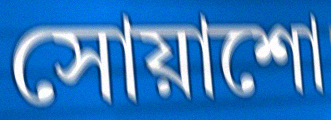
সোয়াশো